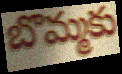
బొమ్మకు